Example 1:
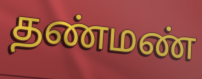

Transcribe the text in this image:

தண்மண்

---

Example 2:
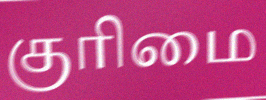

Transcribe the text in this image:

குரிமை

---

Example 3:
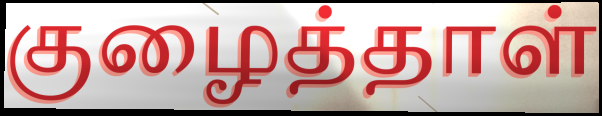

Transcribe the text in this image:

குழைத்தாள்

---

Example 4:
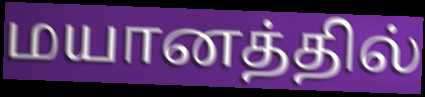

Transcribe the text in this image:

மயானத்தில்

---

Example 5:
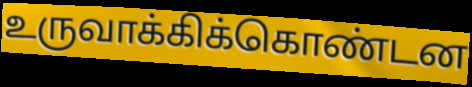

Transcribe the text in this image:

உருவாக்கிக்கொண்டன